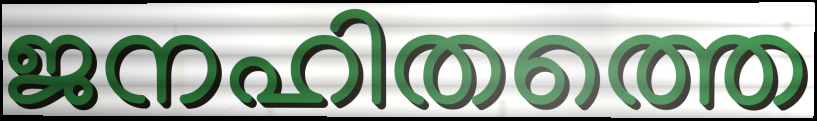
ജനഹിതത്തെ